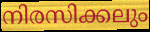
നിരസിക്കലും